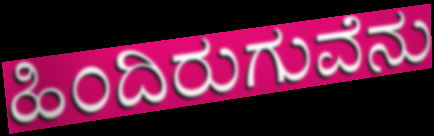
ಹಿಂದಿರುಗುವೆನು